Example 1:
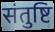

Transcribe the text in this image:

संतुष्टि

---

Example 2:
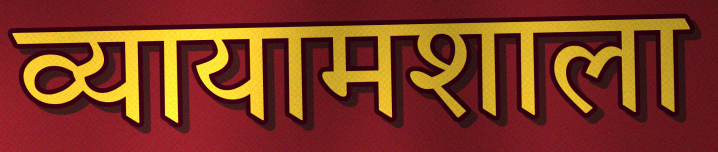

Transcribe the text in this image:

व्यायामशाला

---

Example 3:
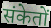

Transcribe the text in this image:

संकेतों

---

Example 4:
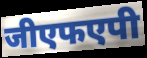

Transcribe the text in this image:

जीएफएपी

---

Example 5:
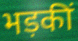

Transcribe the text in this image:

भड़कीं